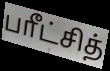
பரீட்சித்